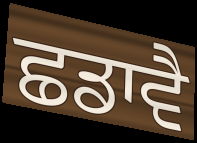
ਛਡਾਵੈ